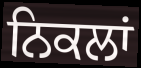
ਨਿਕਲਾਂ